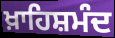
ਖ਼ਾਹਿਸ਼ਮੰਦ